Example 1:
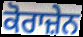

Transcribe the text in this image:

ਕੋਰਾਜ਼ੇਨ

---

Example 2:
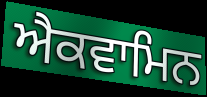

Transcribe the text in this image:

ਐਕਵਾਮਿਨ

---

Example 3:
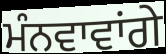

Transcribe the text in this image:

ਮੰਨਵਾਵਾਂਗੇ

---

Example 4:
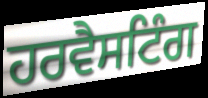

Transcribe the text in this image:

ਹਰਵੈਸਟਿੰਗ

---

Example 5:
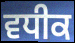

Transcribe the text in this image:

ਵਧੀਕ